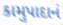
કામુપાદાનં